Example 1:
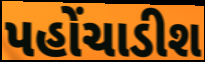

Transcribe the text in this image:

પહોંચાડીશ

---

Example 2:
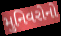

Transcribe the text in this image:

મુનિવરોનો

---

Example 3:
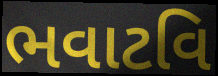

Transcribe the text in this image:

ભવાટવિ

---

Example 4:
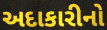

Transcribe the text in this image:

અદાકારીનો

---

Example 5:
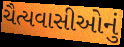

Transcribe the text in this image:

ચૈત્યવાસીઓનું